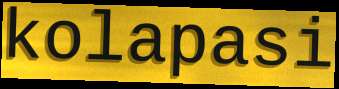
kolapasi